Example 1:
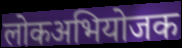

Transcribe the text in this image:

लोकअभियोजक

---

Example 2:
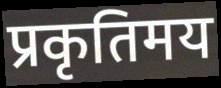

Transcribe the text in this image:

प्रकृतिमय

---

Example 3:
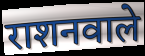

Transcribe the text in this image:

राशनवाले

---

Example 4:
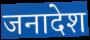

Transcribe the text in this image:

जनादेश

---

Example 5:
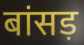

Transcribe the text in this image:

बांसड़